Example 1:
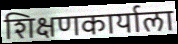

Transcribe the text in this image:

शिक्षणकार्याला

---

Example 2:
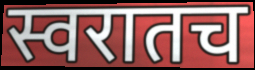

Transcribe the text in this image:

स्वरातच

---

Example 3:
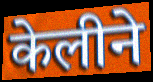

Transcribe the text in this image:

केलीने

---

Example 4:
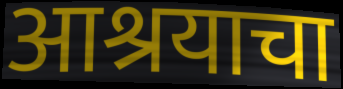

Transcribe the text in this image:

आश्रयाचा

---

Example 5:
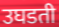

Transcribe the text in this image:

उघडती